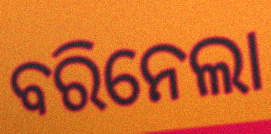
ବରିନେଲା